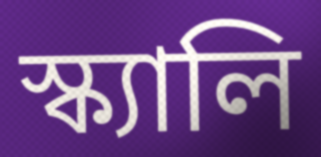
স্ক্যালি